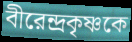
বীরেন্দ্রকৃষ্ণকে